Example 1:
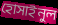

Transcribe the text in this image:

হোসাইনুল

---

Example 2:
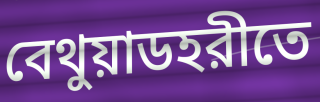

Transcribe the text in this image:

বেথুয়াডহরীতে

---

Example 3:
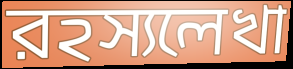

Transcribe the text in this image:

রহস্যলেখা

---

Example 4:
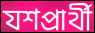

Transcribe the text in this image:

যশপ্রার্থী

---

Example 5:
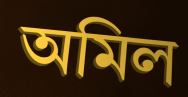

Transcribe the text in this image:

অমিল